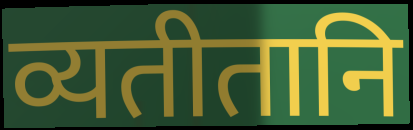
व्यतीतानि